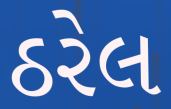
ઠરેલ